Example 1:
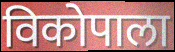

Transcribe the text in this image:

विकोपाला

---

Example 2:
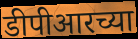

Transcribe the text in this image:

डीपीआरच्या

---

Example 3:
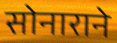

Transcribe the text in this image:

सोनाराने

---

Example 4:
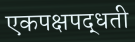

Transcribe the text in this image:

एकपक्षपद्धती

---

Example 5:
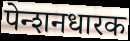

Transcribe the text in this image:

पेन्शनधारक